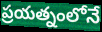
ప్రయత్నంలోనే